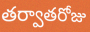
తర్వాతరోజు